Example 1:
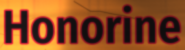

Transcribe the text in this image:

Honorine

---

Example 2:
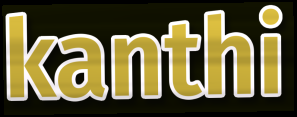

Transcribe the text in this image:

kanthi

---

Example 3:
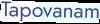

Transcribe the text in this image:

Tapovanam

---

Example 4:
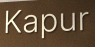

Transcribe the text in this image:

Kapur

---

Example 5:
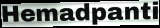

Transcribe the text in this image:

Hemadpanti